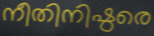
നീതിനിഷ്ഠരെ